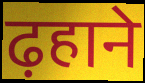
ढ़हाने